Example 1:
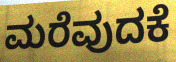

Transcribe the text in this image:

ಮರೆವುದಕೆ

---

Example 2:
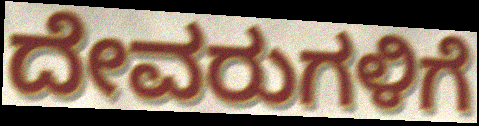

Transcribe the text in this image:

ದೇವರುಗಳಿಗೆ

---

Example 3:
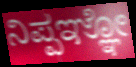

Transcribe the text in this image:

ನಿಪ್ಪಞ್ಞೋ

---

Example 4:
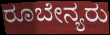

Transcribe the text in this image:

ರೂಬೇನ್ಯರು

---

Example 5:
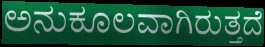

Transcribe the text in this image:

ಅನುಕೂಲವಾಗಿರುತ್ತದೆ